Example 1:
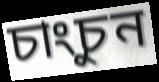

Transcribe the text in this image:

চাংচুন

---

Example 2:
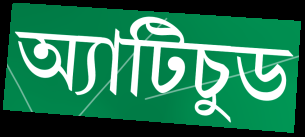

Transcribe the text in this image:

অ্যাটিচুড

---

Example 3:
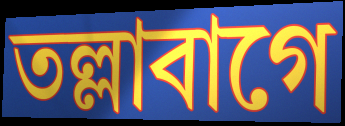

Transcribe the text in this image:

তল্লাবাগে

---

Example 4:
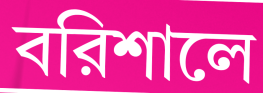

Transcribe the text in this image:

বরিশালে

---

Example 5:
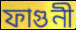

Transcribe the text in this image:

ফাগুনী